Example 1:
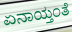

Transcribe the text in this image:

ಏನಾಯ್ತಂತೆ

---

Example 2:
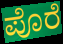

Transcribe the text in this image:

ಪೊರೆ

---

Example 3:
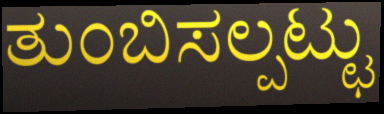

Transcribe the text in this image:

ತುಂಬಿಸಲ್ಪಟ್ಟು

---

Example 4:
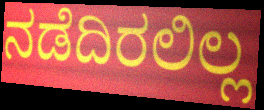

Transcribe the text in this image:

ನಡೆದಿರಲಿಲ್ಲ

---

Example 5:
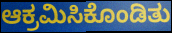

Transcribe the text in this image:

ಆಕ್ರಮಿಸಿಕೊಂಡಿತು